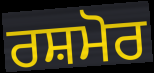
ਰਸ਼ਮੋਰ